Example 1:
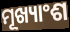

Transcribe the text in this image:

ମୂଖ୍ୟାଂଶ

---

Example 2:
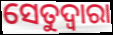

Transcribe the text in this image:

ସେତୁଦ୍ୱାରା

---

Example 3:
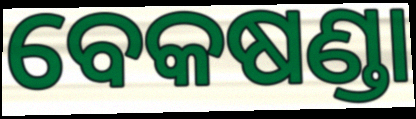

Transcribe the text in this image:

ବେକଷଣ୍ଡା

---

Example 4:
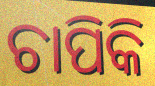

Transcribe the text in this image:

ଚାପିକି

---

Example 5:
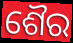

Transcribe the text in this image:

ଶୈର